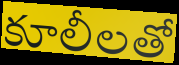
కూలీలతో